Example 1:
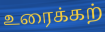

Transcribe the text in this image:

உரைக்கற்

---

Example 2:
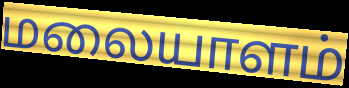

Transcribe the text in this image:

மலையாளம்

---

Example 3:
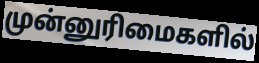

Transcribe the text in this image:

முன்னுரிமைகளில்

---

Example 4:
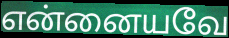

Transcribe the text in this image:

என்னையவே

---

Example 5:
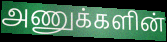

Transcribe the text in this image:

அணுக்களின்